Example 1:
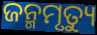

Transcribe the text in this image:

ଜନ୍ମମୃତ୍ୟୁ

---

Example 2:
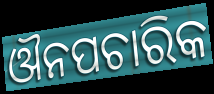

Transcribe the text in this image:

ଔନପଚାରିକ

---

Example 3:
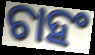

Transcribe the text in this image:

ଚାହଂ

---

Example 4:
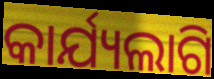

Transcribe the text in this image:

କାର୍ଯ୍ୟଲାଗି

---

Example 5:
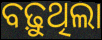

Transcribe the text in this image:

ବଢ଼ୁଥିଲା